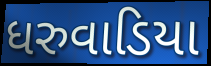
ધરુવાડિયા